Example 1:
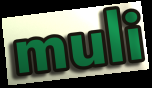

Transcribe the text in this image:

muli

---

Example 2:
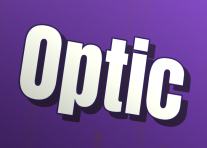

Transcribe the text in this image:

Optic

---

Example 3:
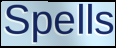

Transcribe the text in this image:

Spells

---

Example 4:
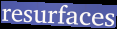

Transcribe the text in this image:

resurfaces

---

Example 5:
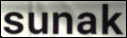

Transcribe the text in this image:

sunak